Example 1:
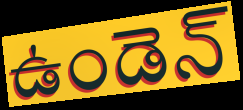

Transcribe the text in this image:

ఉండెన్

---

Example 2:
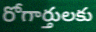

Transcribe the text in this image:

రోగార్తులకు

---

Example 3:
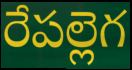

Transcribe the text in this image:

రేపల్లెగ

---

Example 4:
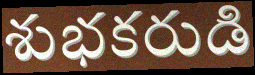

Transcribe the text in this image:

శుభకరుడి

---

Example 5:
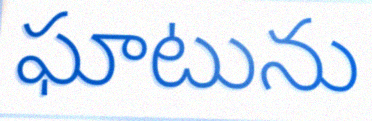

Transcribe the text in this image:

ఘాటును